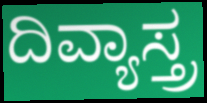
ದಿವ್ಯಾಸ್ತ್ರ